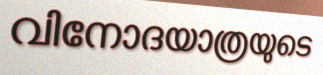
വിനോദയാത്രയുടെ